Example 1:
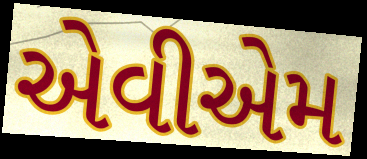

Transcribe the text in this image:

એવીએમ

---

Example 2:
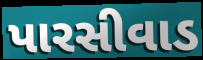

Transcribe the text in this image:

પારસીવાડ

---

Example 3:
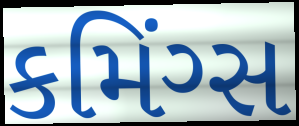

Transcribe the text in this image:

કમિંગ્સ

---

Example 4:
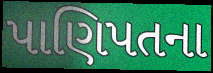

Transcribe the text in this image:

પાણિપતના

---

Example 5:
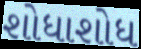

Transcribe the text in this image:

શોધાશોધ